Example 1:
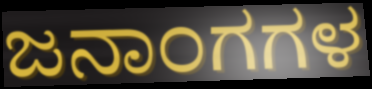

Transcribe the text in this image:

ಜನಾಂಗಗಳ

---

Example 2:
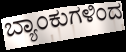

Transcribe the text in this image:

ಬ್ಯಾಂಕುಗಳಿಂದ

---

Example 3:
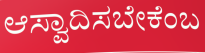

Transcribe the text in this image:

ಆಸ್ವಾದಿಸಬೇಕೆಂಬ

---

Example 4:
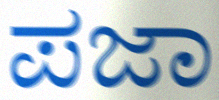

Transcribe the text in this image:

ಪಜಾ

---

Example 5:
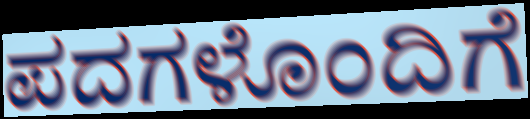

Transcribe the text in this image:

ಪದಗಳೊಂದಿಗೆ